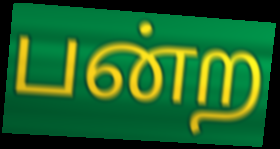
பன்ற